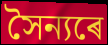
সৈন্যৰে